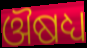
ଔଷଧ୍ୟ